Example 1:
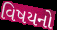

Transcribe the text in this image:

વિષયનો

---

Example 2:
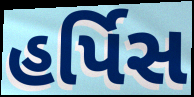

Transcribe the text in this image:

હર્પિસ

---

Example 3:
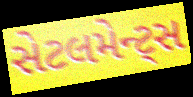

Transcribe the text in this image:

સેટલમેન્ટ્સ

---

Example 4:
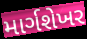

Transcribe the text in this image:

માર્ગશેખર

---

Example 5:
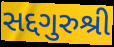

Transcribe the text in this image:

સદ્દગુરુશ્રી